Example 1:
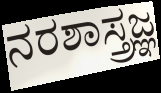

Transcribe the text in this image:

ನರಶಾಸ್ತ್ರಜ್ಞ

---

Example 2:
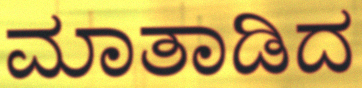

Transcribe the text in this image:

ಮಾತಾಡಿದ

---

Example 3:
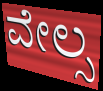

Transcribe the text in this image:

ವೇಲ್ಸ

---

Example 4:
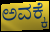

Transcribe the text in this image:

ಅವಕ್ಕೆ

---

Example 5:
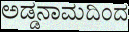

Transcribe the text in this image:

ಅಡ್ಡನಾಮದಿಂದ